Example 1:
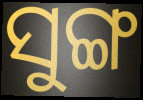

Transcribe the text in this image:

ସୁଙ୍ଗ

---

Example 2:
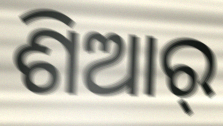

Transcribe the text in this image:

ଶିଆର୍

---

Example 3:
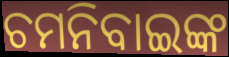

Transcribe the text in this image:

ଚମନିବାଇଙ୍କ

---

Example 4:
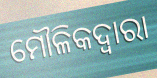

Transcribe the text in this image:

ମୌଳିକଦ୍ଵାରା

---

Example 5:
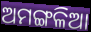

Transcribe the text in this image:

ଅମଙ୍ଗଳିଆ